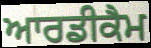
ਆਰਡੀਕੈਮ